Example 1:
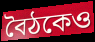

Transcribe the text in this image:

বৈঠকেও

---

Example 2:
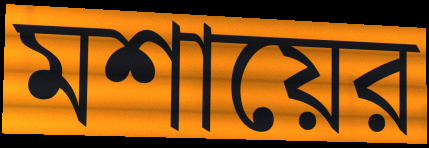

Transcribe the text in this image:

মশায়ের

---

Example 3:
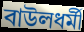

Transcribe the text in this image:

বাউলধর্মী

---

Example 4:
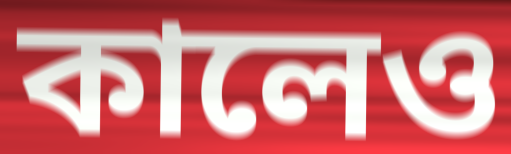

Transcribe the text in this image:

কালেও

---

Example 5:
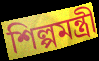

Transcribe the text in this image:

শিল্পমন্ত্রী